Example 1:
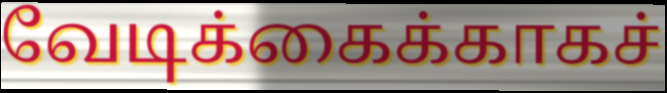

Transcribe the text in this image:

வேடிக்கைக்காகச்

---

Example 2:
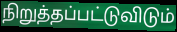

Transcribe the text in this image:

நிறுத்தப்பட்டுவிடும்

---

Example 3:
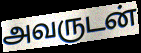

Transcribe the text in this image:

அவருடன்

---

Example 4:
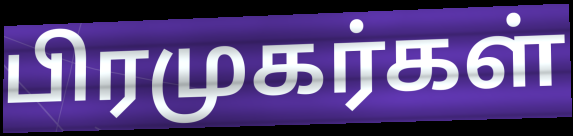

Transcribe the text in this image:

பிரமுகர்கள்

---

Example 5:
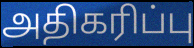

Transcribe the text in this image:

அதிகரிப்பு